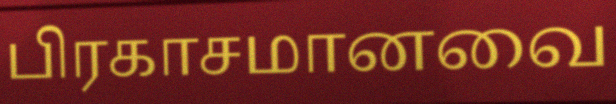
பிரகாசமானவை